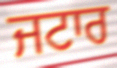
ਜਟਾਰ